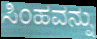
ಸಿಂಹವನ್ನು